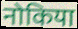
नोकिया